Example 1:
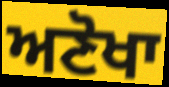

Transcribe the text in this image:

ਅਣੋਖਾ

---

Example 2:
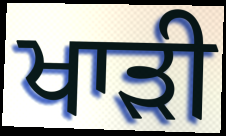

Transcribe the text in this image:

ਖਾਡ਼ੀ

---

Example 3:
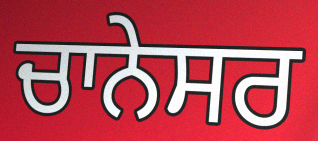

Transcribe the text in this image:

ਚਾਨੇਸਰ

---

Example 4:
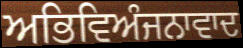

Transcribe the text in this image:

ਅਭਿਵਿਅੰਜਨਾਵਾਦ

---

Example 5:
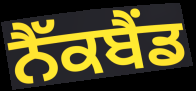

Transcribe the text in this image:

ਨੈੱਕਬੈਂਡ